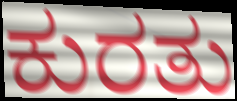
ಕುರತು